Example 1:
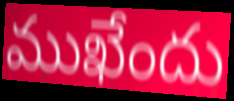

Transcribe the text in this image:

ముఖేందు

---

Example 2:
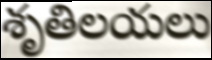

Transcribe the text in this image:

శృతిలయలు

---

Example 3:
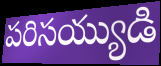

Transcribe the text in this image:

పరిసయ్యుడి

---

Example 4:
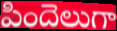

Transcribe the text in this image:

పిందెలుగా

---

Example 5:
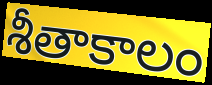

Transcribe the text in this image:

శీతాకాలం